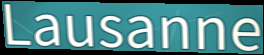
Lausanne